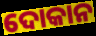
ଦୋକାନ